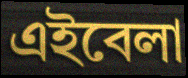
এইবেলা